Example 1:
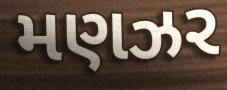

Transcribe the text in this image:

મણઝર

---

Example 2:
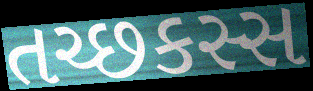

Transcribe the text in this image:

તચ્છકસ્સ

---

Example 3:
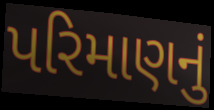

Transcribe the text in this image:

પરિમાણનું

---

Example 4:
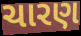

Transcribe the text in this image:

ચારણ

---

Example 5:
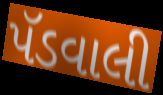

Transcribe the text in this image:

પૅડવાલી